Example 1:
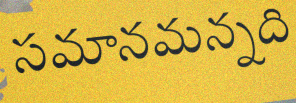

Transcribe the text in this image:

సమానమన్నది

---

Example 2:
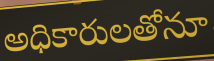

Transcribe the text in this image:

అధికారులతోనూ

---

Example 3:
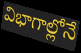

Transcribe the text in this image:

విభాగాల్లోనే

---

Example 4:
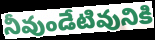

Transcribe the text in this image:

నీవుండేటివునికి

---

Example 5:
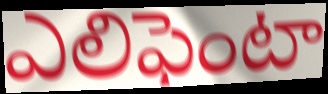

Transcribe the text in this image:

ఎలిఫెంటా